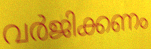
വർജിക്കണം